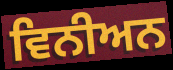
ਵਿਨੀਅਨ